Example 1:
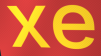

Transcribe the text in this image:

xe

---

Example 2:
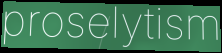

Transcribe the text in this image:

proselytism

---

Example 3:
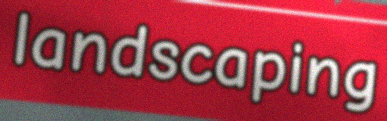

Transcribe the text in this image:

landscaping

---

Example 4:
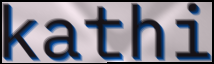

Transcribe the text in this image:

kathi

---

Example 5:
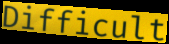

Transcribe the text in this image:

Difficult